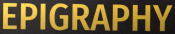
EPIGRAPHY